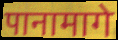
पानामागे